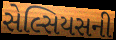
સેલ્સિયસની